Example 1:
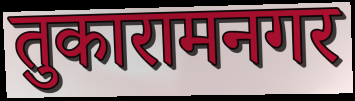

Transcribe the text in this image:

तुकारामनगर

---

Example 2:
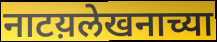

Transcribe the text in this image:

नाटय़लेखनाच्या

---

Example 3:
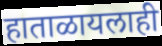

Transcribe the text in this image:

हाताळायलाही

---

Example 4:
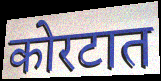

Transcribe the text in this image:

कोरटात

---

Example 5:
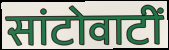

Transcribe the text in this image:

सांटोवाटीं